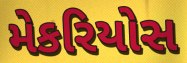
મેકરિયોસ